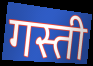
गस्ती